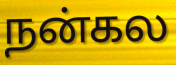
நன்கல